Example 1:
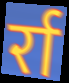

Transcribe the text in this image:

र्रा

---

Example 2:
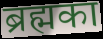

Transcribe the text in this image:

ब्रह्मका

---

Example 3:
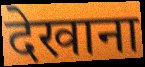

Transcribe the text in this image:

देखाना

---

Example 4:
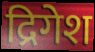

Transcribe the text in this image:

द्रिगेश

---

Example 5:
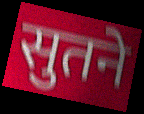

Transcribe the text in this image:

सुतने